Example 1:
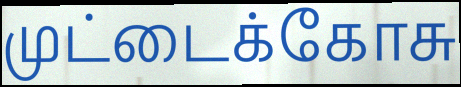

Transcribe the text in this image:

முட்டைக்கோசு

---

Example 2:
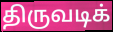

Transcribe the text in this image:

திருவடிக்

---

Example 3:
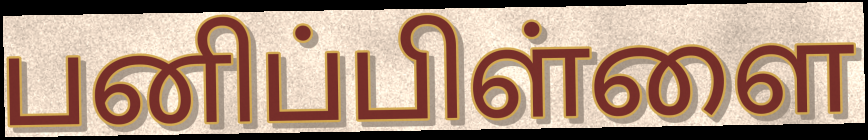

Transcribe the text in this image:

பனிப்பிள்ளை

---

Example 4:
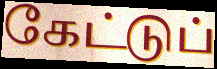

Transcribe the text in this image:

கேட்டுப்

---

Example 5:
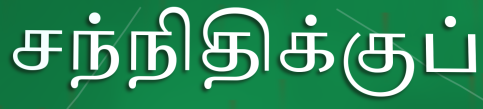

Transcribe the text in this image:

சந்நிதிக்குப்